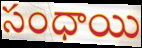
సంధాయి